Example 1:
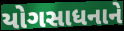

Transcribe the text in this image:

યોગસાધનાને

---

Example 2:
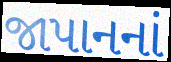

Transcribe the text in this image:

જાપાનનાં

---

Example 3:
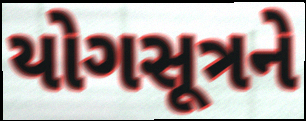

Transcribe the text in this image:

યોગસૂત્રને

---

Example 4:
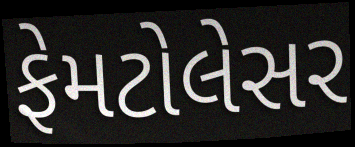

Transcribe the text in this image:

ફેમટોલેસર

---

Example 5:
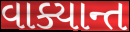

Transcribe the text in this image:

વાક્યાન્ત